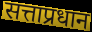
सत्ताप्रधान